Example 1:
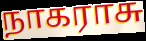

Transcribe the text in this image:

நாகராசு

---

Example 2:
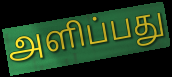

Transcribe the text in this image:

அளிப்பது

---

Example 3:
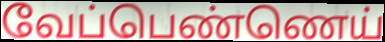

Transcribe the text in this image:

வேப்பெண்ணெய்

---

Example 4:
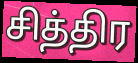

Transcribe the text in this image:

சித்திர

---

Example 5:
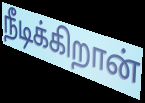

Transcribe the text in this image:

நீடிக்கிறான்